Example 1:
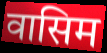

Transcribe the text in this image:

वासिम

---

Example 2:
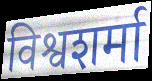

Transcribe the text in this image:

विश्वशर्मा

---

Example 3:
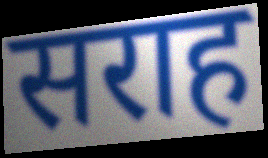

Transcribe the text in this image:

सराह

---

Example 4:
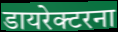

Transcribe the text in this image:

डायरेक्टरना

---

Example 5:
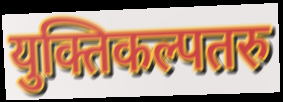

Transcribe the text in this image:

युक्तिकल्पतरु